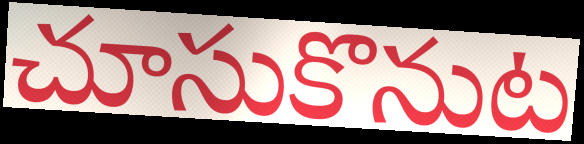
చూసుకొనుట